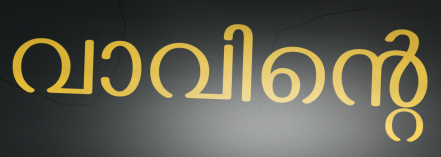
വാവിന്റെ